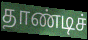
தாண்டிச்